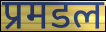
प्रमडल